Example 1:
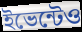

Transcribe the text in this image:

ইভেন্টেও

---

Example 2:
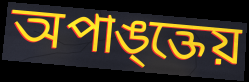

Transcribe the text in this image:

অপাঙ্‌ক্তেয়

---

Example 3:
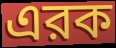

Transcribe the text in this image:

এরক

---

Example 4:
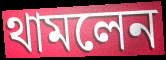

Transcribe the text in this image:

থামলেন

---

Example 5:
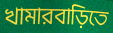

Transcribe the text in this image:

খামারবাড়িতে